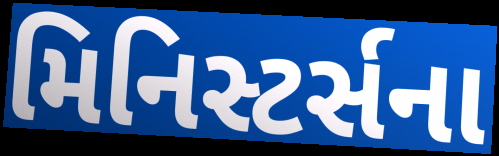
મિનિસ્ટર્સના